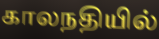
காலநதியில்